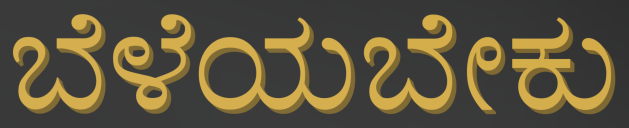
ಬೆಳೆಯಬೇಕು